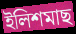
ইলিশমাছ